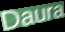
Daura